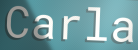
Carla